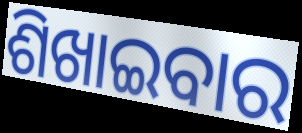
ଶିଖାଇବାର